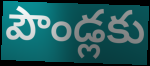
పౌండ్లకు